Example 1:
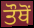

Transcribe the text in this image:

ਤੌਥੋਂ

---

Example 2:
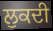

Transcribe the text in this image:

ਲੁਕਦੀ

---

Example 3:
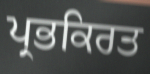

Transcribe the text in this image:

ਪ੍ਰਭਕਿਰਤ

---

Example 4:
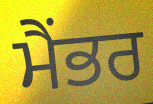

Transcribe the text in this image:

ਮੈਂਭਰ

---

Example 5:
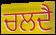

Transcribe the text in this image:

ਚਲਦੈ